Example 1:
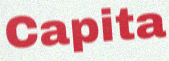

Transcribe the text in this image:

Capita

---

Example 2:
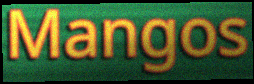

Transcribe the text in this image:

Mangos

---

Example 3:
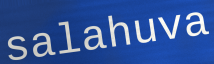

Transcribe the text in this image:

salahuva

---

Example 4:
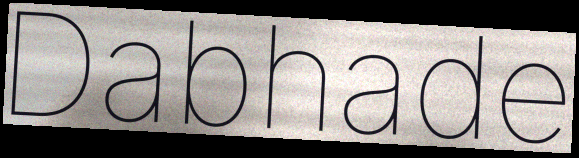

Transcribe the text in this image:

Dabhade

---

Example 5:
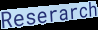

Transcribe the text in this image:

Reserarch